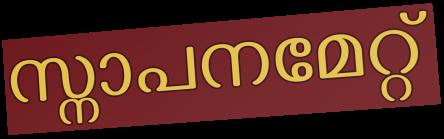
സ്നാപനമേറ്റ്